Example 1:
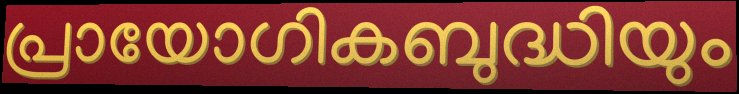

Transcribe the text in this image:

പ്രായോഗികബുദ്ധിയും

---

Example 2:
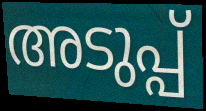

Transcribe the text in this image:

അടുപ്പ്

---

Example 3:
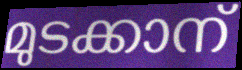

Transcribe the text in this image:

മുടക്കാന്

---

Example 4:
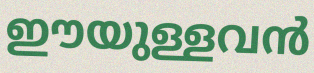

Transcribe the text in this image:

ഈയുള്ളവൻ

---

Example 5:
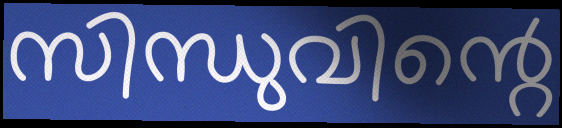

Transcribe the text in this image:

സിന്ധുവിന്റെ